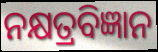
ନକ୍ଷତ୍ରବିଜ୍ଞାନ